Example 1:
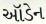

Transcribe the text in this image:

ઑડેન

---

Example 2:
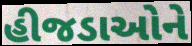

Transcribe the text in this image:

હીજડાઓને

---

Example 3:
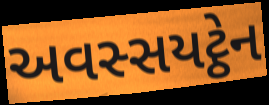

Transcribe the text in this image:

અવસ્સયટ્ઠેન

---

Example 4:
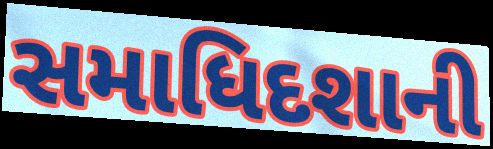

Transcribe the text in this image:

સમાધિદશાની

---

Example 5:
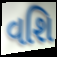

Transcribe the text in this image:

વશિ